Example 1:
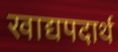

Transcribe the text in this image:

खाद्यपदार्थ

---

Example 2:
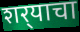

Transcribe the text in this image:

शर्‍याचा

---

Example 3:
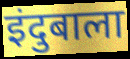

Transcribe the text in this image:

इंदुबाला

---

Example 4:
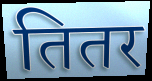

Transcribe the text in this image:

तितर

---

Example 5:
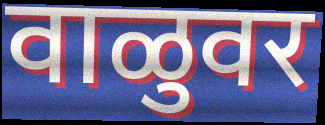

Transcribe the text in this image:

वाळुवर